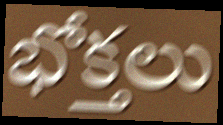
భోక్తలు